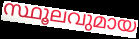
സ്ഥൂലവുമായ